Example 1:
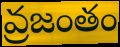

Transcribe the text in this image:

వ్రజంతం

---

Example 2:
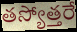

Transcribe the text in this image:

తస్యోత్తరే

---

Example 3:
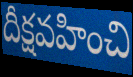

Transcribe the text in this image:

దీక్షవహించి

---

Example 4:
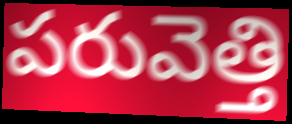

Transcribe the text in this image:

పరువెత్తి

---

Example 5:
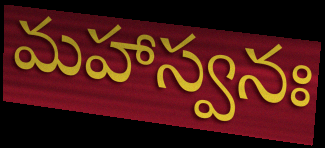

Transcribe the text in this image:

మహాస్వనః